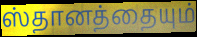
ஸ்தானத்தையும்